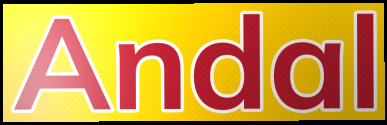
Andal